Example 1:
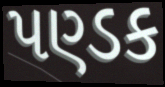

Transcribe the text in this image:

પણ્ડક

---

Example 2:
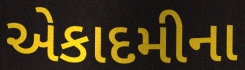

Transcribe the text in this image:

એકાદમીના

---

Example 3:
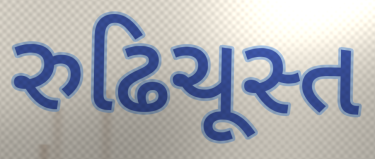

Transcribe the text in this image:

રુઢિચૂસ્ત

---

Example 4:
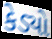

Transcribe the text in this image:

કેડ્યો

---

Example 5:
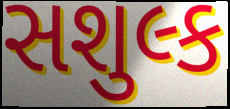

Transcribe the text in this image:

સશુલ્ક